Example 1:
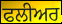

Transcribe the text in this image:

ਫਲੀਅਰ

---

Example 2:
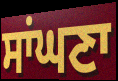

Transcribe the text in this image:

ਸਾਂਘਣਾ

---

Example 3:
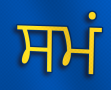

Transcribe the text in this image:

ਸਮਂ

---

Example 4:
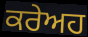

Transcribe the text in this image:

ਕਰੇਅਹ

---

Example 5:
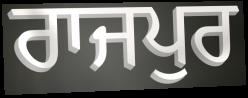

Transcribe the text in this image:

ਰਾਜਪੁਰ